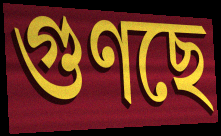
গুণছে